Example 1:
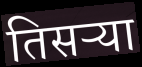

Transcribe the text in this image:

तिसऱ्या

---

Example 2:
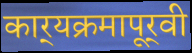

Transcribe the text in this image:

कार्यक्रमापूर्वी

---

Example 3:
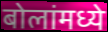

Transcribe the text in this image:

बोलांमध्ये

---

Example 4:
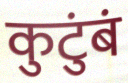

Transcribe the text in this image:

कुटुंबं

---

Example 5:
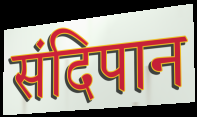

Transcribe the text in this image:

संदिपान